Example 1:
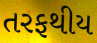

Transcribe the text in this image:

તરફથીય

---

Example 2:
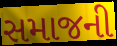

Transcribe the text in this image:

સમાજની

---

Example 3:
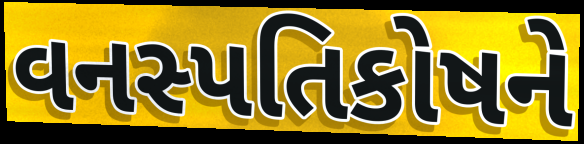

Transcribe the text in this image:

વનસ્પતિકોષને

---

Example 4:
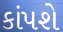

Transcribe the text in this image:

કાંપશે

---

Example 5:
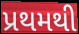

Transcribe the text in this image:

પ્રથમથી